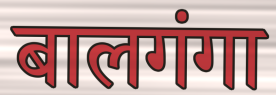
बालगंगा